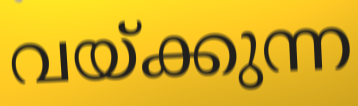
വയ്ക്കുന്ന